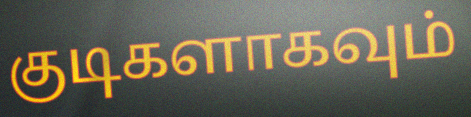
குடிகளாகவும்